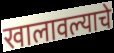
खालावल्याचे